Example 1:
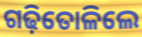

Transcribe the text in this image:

ଗଢ଼ିତୋଳିଲେ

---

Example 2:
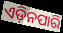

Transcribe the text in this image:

ଏଡ଼ିନପାରି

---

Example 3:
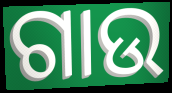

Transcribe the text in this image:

ଗାଉ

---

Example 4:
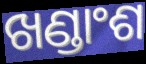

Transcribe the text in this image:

ଖଣ୍ଡାଂଶ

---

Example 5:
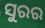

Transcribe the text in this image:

ସୁରର